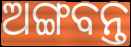
ଅଙ୍ଗବନ୍ତ